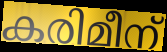
കരിമീന്